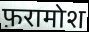
फ़रामोश